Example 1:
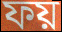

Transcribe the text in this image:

ফয়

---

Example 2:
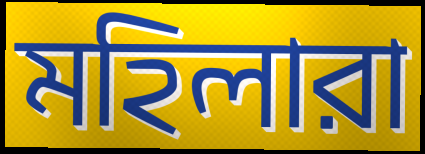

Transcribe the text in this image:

মহিলারা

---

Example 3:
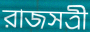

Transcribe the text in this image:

রাজসত্রী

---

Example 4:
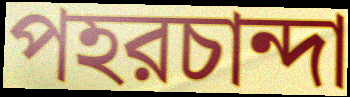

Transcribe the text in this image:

পহরচান্দা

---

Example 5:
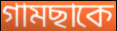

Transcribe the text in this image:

গামছাকে